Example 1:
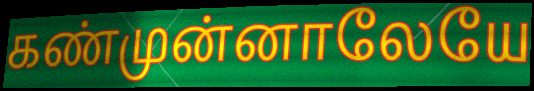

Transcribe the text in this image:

கண்முன்னாலேயே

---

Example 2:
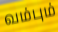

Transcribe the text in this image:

வம்பும்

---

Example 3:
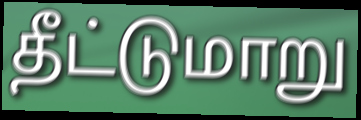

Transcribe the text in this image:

தீட்டுமாறு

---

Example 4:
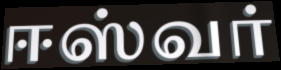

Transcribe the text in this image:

ஈஸ்வர்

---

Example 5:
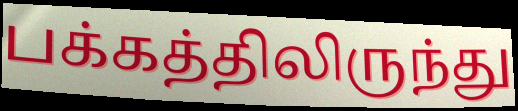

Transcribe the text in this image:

பக்கத்திலிருந்து